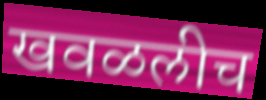
खवळलीच